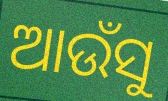
ଆଉଁସୁ